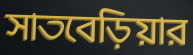
সাতবেড়িয়ার